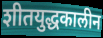
शीतयुद्धकालीन